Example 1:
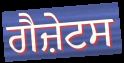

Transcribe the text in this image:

ਗੈਜ਼ੇਟਸ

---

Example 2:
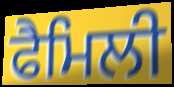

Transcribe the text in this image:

ਫੈਮਿਲੀ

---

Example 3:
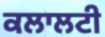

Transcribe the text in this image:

ਕਲਾਲਟੀ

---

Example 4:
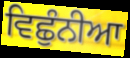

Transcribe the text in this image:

ਵਿਛੁੰਨੀਆ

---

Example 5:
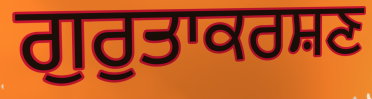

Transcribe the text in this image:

ਗੁਰੁਤਾਕਰਸ਼ਣ